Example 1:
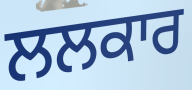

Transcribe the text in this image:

ਲਲਕਾਰ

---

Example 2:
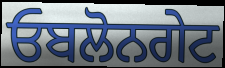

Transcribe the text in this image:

ਓਬਲੋਨਗੇਟ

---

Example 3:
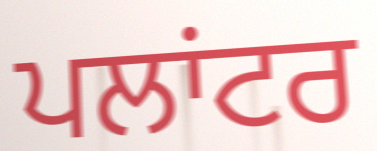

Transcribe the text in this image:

ਪਲਾਂਟਰ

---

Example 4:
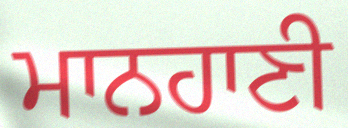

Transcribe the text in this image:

ਮਾਨਹਾਣੀ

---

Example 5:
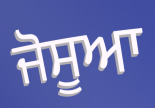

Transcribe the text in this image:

ਜੋਸੂਆ